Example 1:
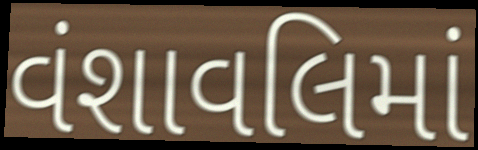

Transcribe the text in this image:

વંશાવલિમાં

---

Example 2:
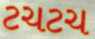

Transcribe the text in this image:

ટચટચ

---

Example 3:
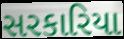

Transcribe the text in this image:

સરકારિયા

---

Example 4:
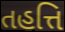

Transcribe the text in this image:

તહત્તિ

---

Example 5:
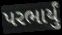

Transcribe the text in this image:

પરભાર્યું